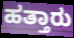
ಹತ್ತಾರು